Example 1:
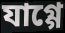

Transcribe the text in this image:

যাগ্গে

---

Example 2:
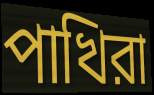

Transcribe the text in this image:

পাখিরা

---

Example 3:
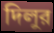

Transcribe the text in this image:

দিলুর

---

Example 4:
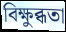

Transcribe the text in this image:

বিক্ষুব্ধতা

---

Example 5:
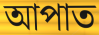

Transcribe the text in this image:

আপাত